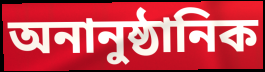
অনানুষ্ঠানিক